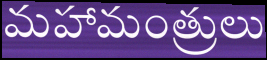
మహామంత్రులు